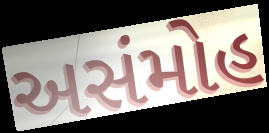
અસંમોહ